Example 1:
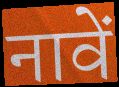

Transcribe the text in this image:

नावें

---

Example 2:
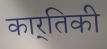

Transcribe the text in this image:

कार्तिकी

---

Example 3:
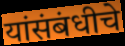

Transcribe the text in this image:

यांसंबंधीचे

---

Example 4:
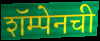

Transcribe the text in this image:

शॅम्पेनची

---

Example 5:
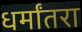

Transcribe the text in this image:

धर्मांतरा